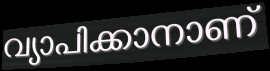
വ്യാപിക്കാനാണ്